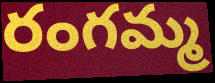
రంగమ్మ